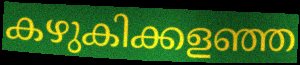
കഴുകിക്കളഞ്ഞ